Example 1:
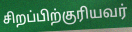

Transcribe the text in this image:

சிறப்பிற்குரியவர்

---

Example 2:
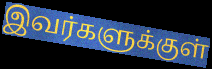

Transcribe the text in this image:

இவர்களுக்குள்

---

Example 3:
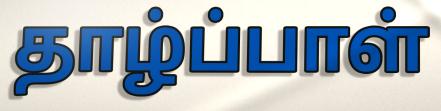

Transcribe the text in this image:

தாழ்ப்பாள்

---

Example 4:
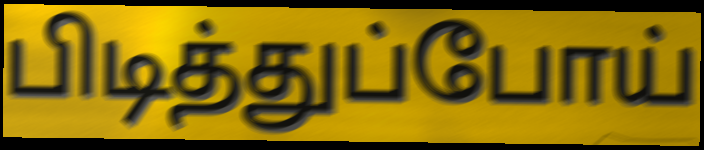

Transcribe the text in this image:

பிடித்துப்போய்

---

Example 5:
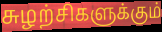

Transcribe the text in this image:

சுழற்சிகளுக்கும்